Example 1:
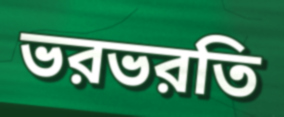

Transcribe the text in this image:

ভরভরতি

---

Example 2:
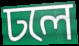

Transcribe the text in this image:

ঢলে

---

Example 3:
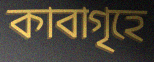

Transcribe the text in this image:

কাবাগৃহে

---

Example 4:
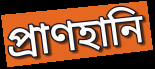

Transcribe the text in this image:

প্রাণহানি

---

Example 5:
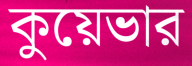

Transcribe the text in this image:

কুয়েভার